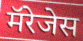
मॅरेजेस